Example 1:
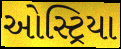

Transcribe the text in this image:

ઓસ્ટ્રિયા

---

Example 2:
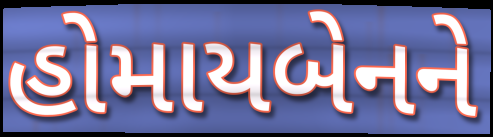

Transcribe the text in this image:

હોમાયબેનને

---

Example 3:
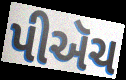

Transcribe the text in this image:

પીઍચ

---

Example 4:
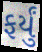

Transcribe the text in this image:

ફર્યું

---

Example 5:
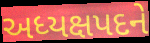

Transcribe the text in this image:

અધ્યક્ષપદને